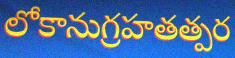
లోకానుగ్రహతత్పర